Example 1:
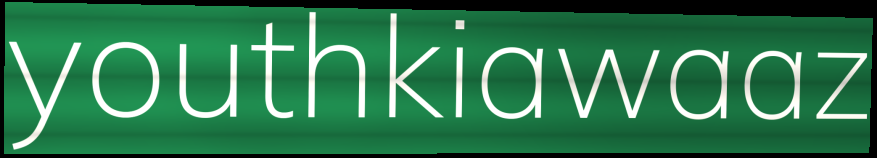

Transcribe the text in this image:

youthkiawaaz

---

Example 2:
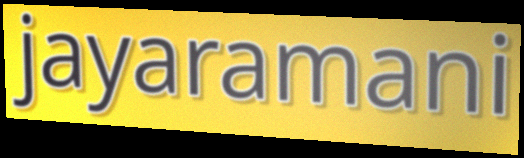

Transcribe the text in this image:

jayaramani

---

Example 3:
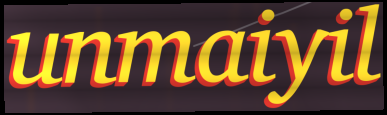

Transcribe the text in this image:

unmaiyil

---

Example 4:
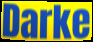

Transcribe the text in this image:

Darke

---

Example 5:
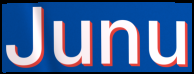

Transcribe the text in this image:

Junu